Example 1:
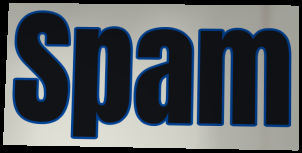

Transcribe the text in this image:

Spam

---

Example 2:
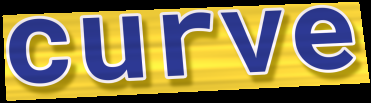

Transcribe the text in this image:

curve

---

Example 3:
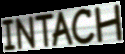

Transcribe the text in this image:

INTACH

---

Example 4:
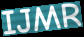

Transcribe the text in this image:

IJMR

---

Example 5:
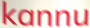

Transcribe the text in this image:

kannu